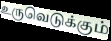
உருவெடுக்கும்